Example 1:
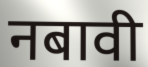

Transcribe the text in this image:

नबावी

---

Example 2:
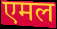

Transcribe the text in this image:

एमल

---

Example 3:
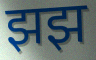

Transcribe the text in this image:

झझ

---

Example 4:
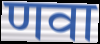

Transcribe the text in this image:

णवा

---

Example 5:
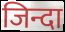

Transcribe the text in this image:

जिन्‍दा